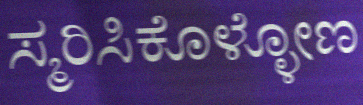
ಸ್ಮರಿಸಿಕೊಳ್ಳೋಣ